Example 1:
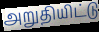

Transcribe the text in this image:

அறுதியிட்டு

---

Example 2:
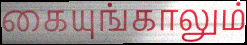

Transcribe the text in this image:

கையுங்காலும்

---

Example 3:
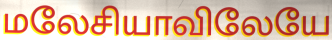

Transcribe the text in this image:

மலேசியாவிலேயே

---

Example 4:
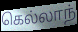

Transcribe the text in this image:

கெல்லாந்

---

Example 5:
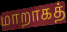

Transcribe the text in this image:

மாறாகத்